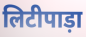
लिटीपाड़ा